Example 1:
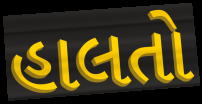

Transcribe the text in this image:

હાલતો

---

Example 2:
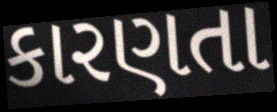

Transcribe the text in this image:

કારણતા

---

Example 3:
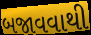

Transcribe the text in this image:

બજાવવાથી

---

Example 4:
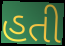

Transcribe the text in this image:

હતી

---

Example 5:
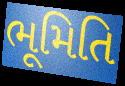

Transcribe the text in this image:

ભૂમિતિ